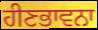
ਹੀਣਭਾਵਨਾ